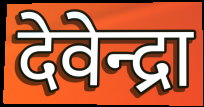
देवेन्द्रा